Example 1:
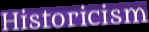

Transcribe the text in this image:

Historicism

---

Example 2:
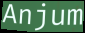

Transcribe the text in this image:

Anjum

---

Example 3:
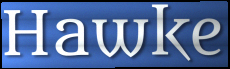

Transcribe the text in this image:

Hawke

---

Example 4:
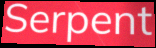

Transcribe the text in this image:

Serpent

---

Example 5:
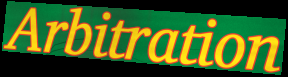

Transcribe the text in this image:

Arbitration